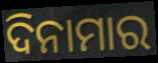
ଦିନାମାର